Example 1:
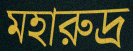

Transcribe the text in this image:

মহারুদ্র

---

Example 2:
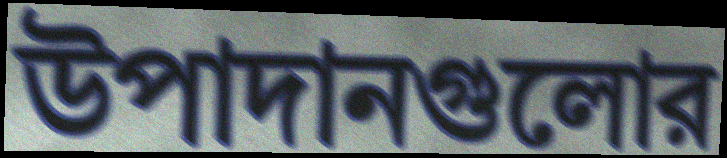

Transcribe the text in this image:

উপাদানগুলোর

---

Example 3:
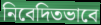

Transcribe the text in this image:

নিবেদিতভাবে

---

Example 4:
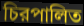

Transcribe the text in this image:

চিরপালিত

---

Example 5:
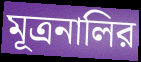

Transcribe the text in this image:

মূত্রনালির